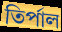
তিৰ্পাল